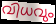
വിധവും